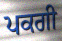
ਪਕਗੀ